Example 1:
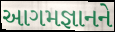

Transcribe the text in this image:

આગમજ્ઞાનને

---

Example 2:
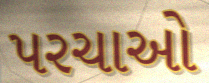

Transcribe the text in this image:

પરચાઓ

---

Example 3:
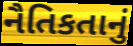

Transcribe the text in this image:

નૈતિકતાનું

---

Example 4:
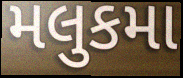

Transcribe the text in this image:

મલુકમા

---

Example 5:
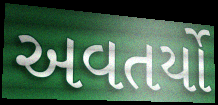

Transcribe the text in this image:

અવતર્યો